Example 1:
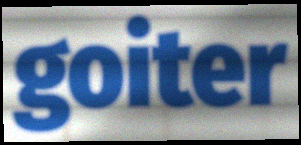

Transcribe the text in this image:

goiter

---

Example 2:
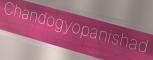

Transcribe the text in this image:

Chandogyopanishad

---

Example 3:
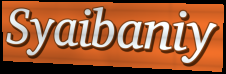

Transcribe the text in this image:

Syaibaniy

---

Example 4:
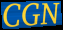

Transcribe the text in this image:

CGN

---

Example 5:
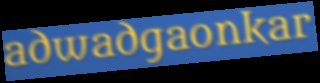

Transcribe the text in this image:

adwadgaonkar